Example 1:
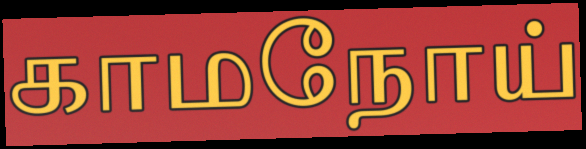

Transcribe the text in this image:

காமநோய்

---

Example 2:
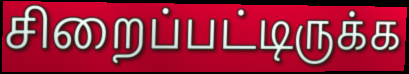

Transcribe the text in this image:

சிறைப்பட்டிருக்க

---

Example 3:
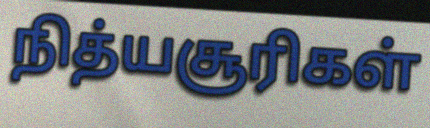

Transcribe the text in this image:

நித்யசூரிகள்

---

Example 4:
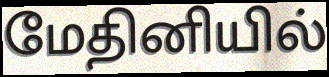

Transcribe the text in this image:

மேதினியில்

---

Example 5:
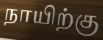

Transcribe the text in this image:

நாயிற்கு